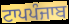
ਟਾਪਪੰਜਾਬ